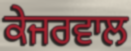
ਕੇਜਰਵਾਲ